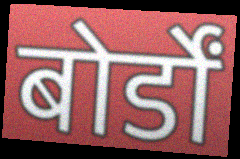
बोर्डों